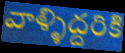
వాళ్ళిద్దరికి